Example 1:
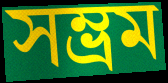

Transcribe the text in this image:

সম্ভ্রম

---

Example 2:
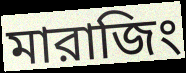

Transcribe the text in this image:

মারাজিং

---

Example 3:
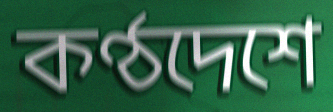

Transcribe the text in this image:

কণ্ঠদেশে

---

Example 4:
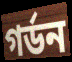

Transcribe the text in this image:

গর্ডন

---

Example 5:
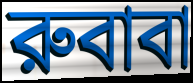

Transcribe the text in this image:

রুবাবা